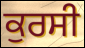
ਕੁਰਸੀ